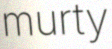
murty